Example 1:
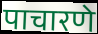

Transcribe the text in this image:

पाचारणे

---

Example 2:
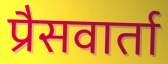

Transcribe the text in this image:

प्रैसवार्ता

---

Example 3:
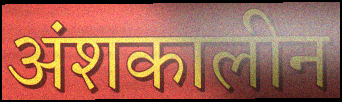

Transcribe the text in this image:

अंशकालीन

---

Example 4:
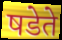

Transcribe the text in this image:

षडेते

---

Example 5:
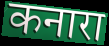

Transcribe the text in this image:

कनारा